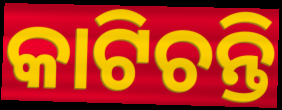
କାଟିଚନ୍ତି